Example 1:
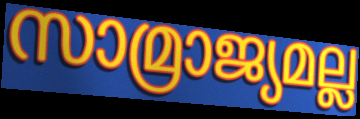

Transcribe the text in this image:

സാമ്രാജ്യമല്ല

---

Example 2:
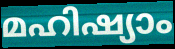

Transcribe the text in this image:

മഹിഷ്യാം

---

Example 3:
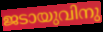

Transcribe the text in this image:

ജടായുവിനു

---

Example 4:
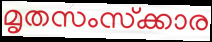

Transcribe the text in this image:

മൃതസംസ്‌ക്കാര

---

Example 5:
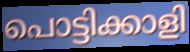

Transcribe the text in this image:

പൊട്ടിക്കാളി